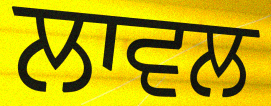
ਲਾਵਲ